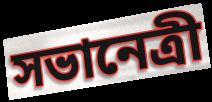
সভানেত্ৰী